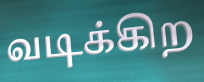
வடிக்கிற